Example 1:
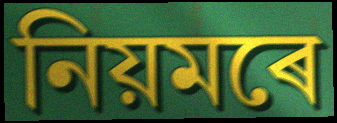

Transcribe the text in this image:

নিয়মৰে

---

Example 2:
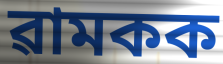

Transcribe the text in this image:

ৱামকক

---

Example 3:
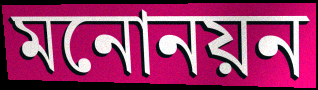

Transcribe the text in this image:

মনোনয়ন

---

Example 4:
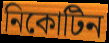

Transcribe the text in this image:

নিকোটিন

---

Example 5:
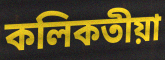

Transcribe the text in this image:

কলিকতীয়া